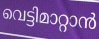
വെട്ടിമാറ്റാൻ